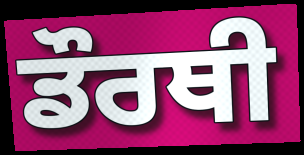
ਡੌਰਥੀ